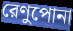
রেণুপোনা